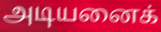
அடியனைக்